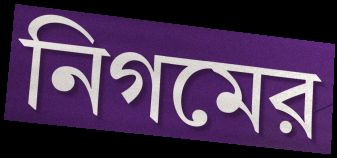
নিগমের